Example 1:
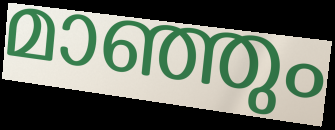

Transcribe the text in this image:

മാഞ്ഞും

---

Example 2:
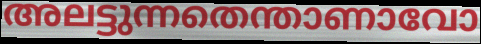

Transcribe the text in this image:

അലട്ടുന്നതെന്താണാവോ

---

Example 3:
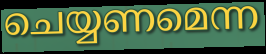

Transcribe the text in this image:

ചെയ്യണമെന്ന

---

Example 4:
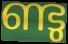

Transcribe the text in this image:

ണ്ടു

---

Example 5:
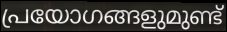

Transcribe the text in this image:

പ്രയോഗങ്ങളുമുണ്ട്